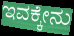
ಇವಕ್ಕೇನು